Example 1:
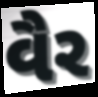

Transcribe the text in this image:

વૈર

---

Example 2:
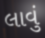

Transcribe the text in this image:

લાવું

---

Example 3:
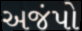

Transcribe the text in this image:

અજંપો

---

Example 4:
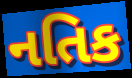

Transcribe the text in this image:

નતિક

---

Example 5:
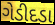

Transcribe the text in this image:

ગેડીદડા